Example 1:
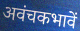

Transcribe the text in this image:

अवंचकभावें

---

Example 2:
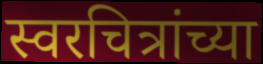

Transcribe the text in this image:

स्वरचित्रांच्या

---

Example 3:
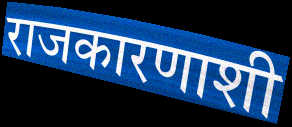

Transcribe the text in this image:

राजकारणाशी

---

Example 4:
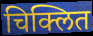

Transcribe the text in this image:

चिक्लित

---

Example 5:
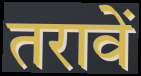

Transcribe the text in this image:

तरावें